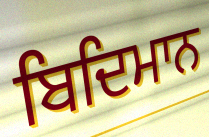
ਬਿਦਿਮਾਨ